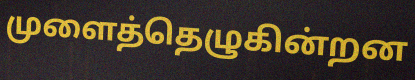
முளைத்தெழுகின்றன